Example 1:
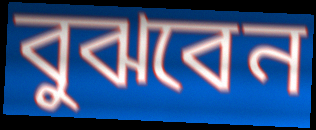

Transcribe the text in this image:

বুঝবেন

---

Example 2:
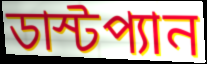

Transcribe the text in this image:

ডাস্টপ্যান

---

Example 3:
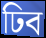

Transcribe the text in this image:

ঢিব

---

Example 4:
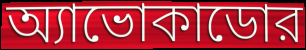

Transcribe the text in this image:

অ্যাভোকাডোর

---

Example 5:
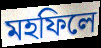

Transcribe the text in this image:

মহফিলে